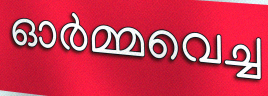
ഓർമ്മവെച്ച